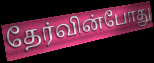
தேர்வின்போது